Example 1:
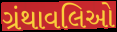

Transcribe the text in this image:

ગ્રંથાવલિઓ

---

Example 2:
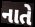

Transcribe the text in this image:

નાતે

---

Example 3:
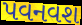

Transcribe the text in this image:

પવનવશ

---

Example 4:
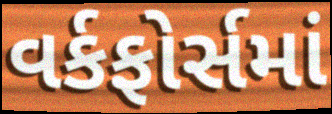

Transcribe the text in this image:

વર્કફોર્સમાં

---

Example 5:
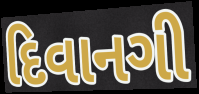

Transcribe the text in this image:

દિવાનગી